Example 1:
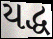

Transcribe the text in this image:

યદ્ધ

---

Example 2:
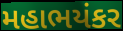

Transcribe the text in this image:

મહાભયંકર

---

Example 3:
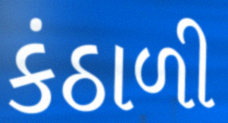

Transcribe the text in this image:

કંઠાળી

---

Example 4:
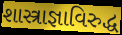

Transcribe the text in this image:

શાસ્ત્રાજ્ઞાવિરુદ્ધ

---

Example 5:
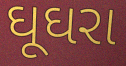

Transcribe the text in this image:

ઘૂઘરા